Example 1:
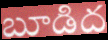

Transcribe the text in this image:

బూడిద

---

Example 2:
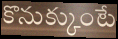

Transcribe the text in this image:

కొనుక్కుంటే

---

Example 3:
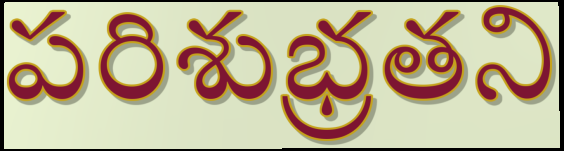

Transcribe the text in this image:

పరిశుభ్రతని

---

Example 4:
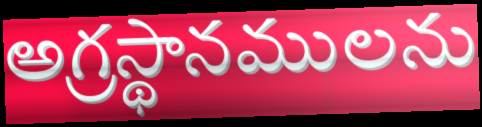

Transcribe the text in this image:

అగ్రస్థానములను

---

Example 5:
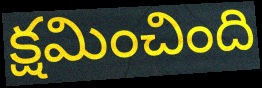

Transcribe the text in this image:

క్షమించింది